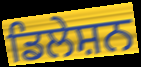
ਡਿਲੇਸ਼ਨ